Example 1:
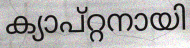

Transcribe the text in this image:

ക്യാപ്റ്റനായി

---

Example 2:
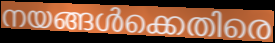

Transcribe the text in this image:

നയങ്ങൾക്കെതിരെ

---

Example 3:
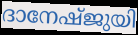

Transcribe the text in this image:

ദാനേഷ്ജുയി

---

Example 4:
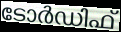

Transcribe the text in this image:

ടോർഡിഫ്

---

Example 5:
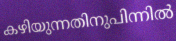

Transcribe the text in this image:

കഴിയുന്നതിനുപിന്നിൽ